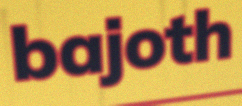
bajoth